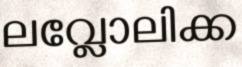
ലവ്ലോലിക്ക